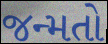
જન્મતો